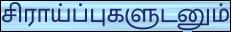
சிராய்ப்புகளுடனும்